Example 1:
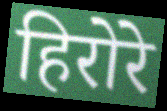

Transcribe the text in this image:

हिरोरे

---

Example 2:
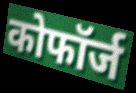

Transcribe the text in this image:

कोफॉर्ज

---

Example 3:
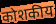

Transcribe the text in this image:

कोशकीय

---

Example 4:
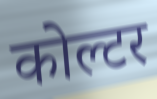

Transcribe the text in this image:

कोल्टर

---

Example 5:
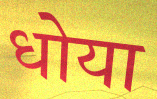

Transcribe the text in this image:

धोया